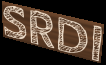
SRDI